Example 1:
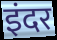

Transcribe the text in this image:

इंदर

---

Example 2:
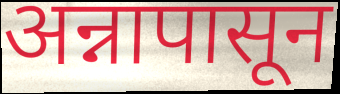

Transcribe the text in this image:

अन्नापासून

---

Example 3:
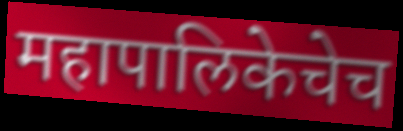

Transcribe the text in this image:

महापालिकेचेच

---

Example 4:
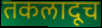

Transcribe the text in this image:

तकलादूच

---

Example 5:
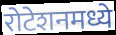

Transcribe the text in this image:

रोटेशनमध्ये